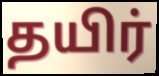
தயிர்